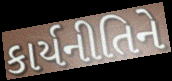
કાર્યનીતિને